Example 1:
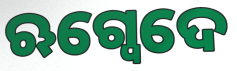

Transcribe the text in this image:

ଋଗ୍ଵେଦେ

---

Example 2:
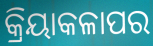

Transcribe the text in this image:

କ୍ରିୟାକଳାପର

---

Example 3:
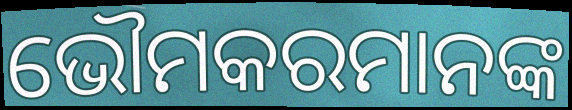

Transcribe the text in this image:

ଭୌମକରମାନଙ୍କ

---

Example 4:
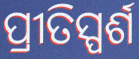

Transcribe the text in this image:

ପ୍ରୀତିସ୍ପର୍ଶ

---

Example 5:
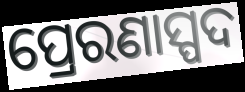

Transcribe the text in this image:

ପ୍ରେରଣାସ୍ପଦ